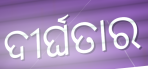
ଦୀର୍ଘତାର